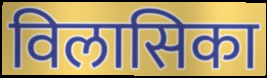
विलासिका